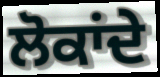
ਲੋਕਾਂਦੇ